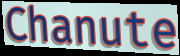
Chanute